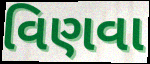
વિણવા